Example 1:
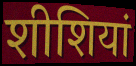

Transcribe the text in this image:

शीशियां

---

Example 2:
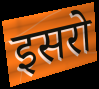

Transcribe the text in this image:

इसरो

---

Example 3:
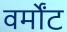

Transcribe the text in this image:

वर्मोंट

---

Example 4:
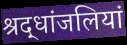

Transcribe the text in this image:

श्रद्धांजलियां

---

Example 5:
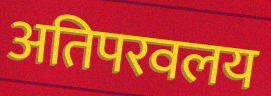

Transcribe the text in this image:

अतिपरवलय